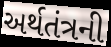
અર્થતંત્રની